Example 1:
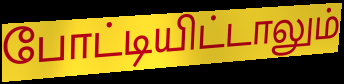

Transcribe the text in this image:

போட்டியிட்டாலும்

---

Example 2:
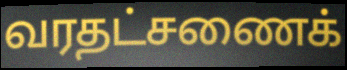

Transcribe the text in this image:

வரதட்சணைக்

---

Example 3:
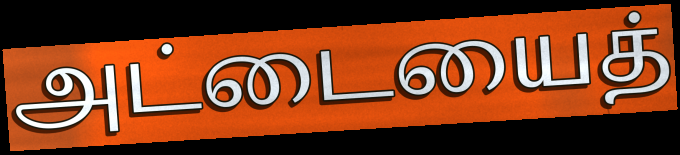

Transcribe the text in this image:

அட்டையைத்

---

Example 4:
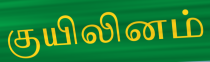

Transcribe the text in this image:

குயிலினம்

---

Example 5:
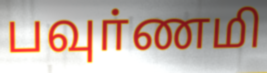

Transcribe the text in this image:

பவுர்ணமி